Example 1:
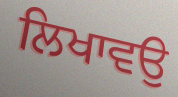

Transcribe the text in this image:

ਲਿਖਾਵਉ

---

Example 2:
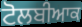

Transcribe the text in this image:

ਟੋਲਬੀਆਕ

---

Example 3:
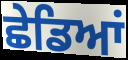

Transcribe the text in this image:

ਛੇਡਿਆਂ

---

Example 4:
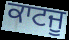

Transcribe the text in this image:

ਕਾਟਜੂ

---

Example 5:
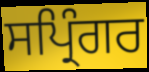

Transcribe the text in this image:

ਸਪ੍ਰਿੰਗਰ